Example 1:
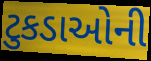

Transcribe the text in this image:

ટુકડાઓની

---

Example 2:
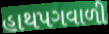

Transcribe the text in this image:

હાથપગવાળી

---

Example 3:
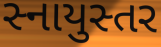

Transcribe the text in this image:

સ્નાયુસ્તર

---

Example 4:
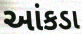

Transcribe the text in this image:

આંકડા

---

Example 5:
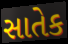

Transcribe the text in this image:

સાતેક